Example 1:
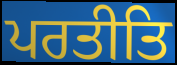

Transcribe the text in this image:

ਪਰਤੀਤਿ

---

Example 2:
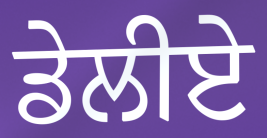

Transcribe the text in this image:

ਡੇਲੀਏ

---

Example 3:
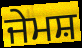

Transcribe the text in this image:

ਜੇਮਸ਼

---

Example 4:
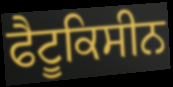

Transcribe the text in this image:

ਫੈਟੂਕਿਸੀਨ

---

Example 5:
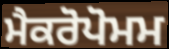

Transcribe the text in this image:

ਮੈਕਰੋਪੋਮਮ